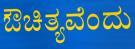
ಔಚಿತ್ಯವೆಂದು